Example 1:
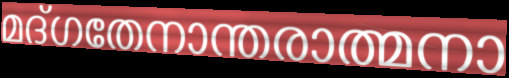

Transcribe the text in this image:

മദ്ഗതേനാന്തരാത്മനാ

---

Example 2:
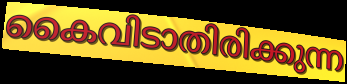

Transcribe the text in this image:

കൈവിടാതിരിക്കുന്ന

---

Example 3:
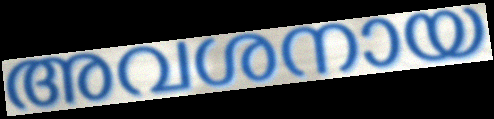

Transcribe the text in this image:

അവശനായ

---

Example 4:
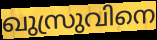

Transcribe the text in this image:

ഖുസ്രുവിനെ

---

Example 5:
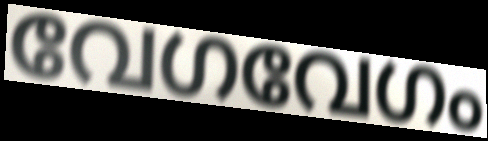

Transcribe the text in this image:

വേഗവേഗം